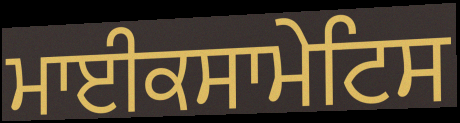
ਮਾਈਕਸਾਮੇਟਿਸ